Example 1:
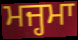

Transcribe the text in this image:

ਮਜ੍ਹਮਾ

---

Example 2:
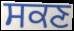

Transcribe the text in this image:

ਸਕਣ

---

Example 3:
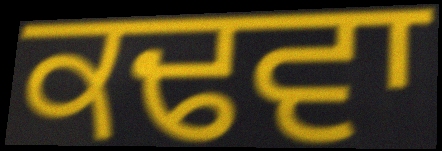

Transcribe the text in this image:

ਕਢਵਾ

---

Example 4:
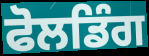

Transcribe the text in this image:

ਫੋਲਡਿੰਗ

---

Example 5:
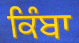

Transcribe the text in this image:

ਕਿੰਬਾ